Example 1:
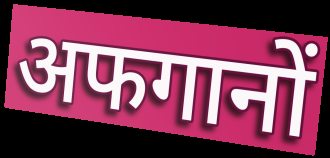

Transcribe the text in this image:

अफगानों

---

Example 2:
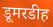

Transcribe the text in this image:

डूमरडीह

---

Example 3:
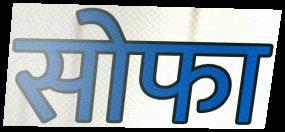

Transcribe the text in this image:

सोफा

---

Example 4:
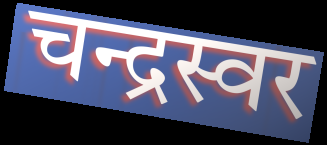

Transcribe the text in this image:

चन्द्रस्वर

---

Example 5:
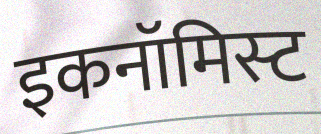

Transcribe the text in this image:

इकनॉमिस्‍ट